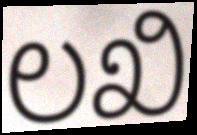
ಲಖಿ